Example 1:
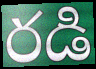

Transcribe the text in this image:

రడి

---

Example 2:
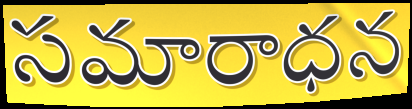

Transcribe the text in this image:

సమారాధన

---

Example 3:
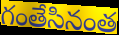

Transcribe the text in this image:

గంతేసినంత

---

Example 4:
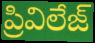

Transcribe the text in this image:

ప్రివిలేజ్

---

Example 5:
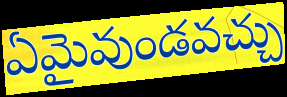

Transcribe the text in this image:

ఏమైవుండవచ్చు